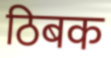
ठिबक